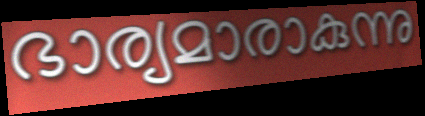
ഭാര്യമാരാകുന്നു